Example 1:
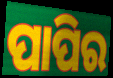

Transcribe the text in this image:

ପାପିର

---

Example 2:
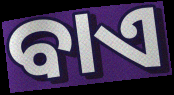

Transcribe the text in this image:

ବାଏ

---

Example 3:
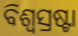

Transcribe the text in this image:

ବିଶ୍ୱସ୍ରଷ୍ଟା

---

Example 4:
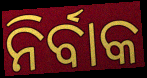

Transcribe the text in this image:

ନିର୍ବାକ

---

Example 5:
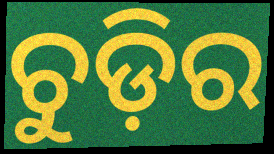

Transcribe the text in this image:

ଚୁଡ଼ିର